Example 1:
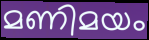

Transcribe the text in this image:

മണിമയം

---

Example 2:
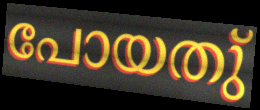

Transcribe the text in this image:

പോയതു്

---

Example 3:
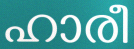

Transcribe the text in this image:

ഹാരീ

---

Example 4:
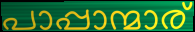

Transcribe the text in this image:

പാപ്പാന്മാര്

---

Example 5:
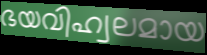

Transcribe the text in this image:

ഭയവിഹ്വലമായ